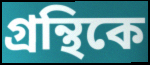
গ্রন্থিকে